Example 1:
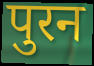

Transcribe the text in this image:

पुरन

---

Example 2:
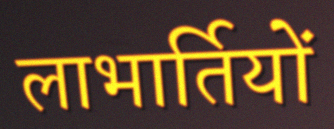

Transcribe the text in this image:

लाभार्तियों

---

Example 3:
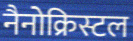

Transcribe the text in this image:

नैनोक्रिस्टल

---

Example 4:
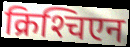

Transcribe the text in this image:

क्रिश्चिएन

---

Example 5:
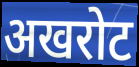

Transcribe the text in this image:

अखरोट